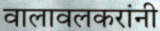
वालावलकरांनी